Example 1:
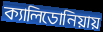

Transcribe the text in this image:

ক্যালিডোনিয়ায়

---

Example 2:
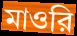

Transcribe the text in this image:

মাওরি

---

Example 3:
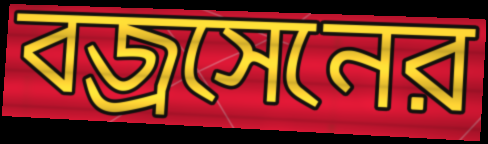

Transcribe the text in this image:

বজ্রসেনের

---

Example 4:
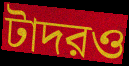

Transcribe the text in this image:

টাদরও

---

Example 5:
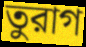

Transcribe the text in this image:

তুরাগ